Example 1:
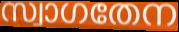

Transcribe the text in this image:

സ്വാഗതേന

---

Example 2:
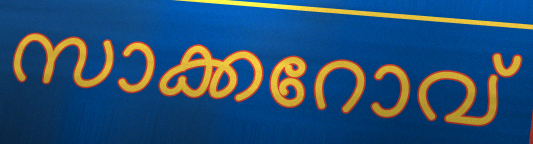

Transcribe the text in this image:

സാക്കറോവ്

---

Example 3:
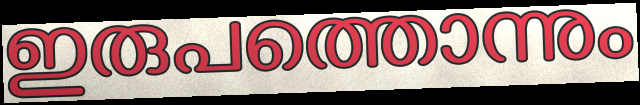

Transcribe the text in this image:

ഇരുപത്തൊന്നും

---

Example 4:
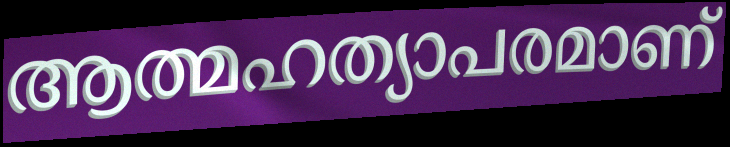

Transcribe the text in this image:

ആത്മഹത്യാപരമാണ്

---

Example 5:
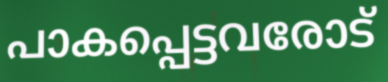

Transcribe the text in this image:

പാകപ്പെട്ടവരോട്